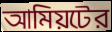
আমিয়টের